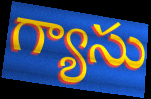
గ్యాసు